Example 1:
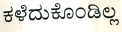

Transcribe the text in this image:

ಕಳೆದುಕೊಂಡಿಲ್ಲ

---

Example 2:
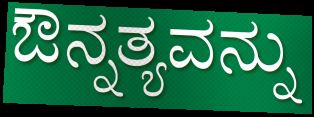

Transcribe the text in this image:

ಔನ್ನತ್ಯವನ್ನು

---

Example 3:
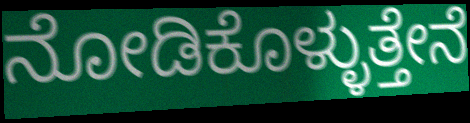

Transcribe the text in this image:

ನೋಡಿಕೊಳ್ಳುತ್ತೇನೆ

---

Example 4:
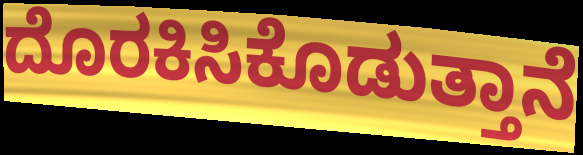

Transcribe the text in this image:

ದೊರಕಿಸಿಕೊಡುತ್ತಾನೆ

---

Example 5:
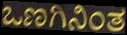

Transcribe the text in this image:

ಒಣಗಿನಿಂತ